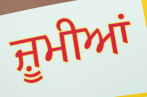
ਜ਼ੂਮੀਆਂ